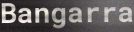
Bangarra